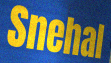
Snehal